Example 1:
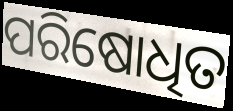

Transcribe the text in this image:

ପରିଷୋଧିତ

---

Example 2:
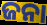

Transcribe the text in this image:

ଜନା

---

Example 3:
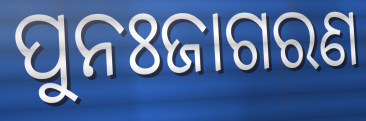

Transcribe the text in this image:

ପୁନଃଜାଗରଣ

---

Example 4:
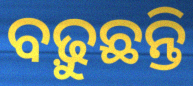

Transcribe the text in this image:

ବଢ଼ୁଛନ୍ତି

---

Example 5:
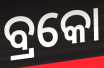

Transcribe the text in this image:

ବ୍ରକୋ